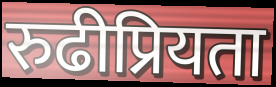
रुढीप्रियता